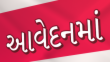
આવેદનમાં